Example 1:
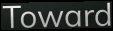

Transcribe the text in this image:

Toward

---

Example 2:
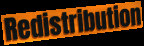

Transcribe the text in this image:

Redistribution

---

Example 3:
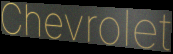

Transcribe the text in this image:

Chevrolet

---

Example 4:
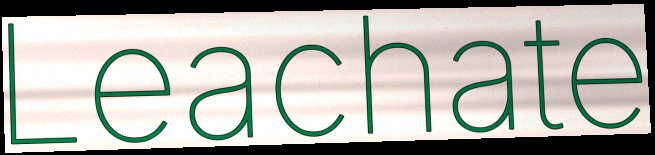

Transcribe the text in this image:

Leachate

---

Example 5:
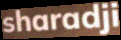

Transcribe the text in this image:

sharadji